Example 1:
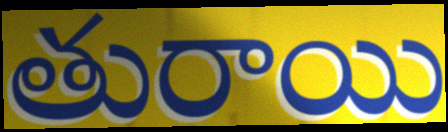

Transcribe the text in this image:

తురాయి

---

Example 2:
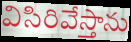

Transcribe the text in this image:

విసిరివేస్తాను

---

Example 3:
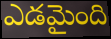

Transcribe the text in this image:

ఎడమైంది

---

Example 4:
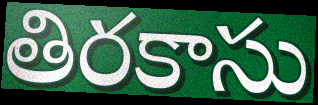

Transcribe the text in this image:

తిరకాసు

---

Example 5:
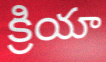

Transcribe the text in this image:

క్రియా